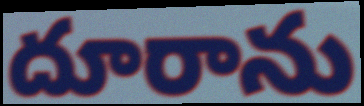
దూరాను